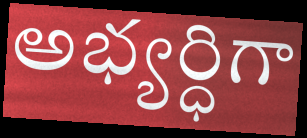
అభ్యర్ధిగా